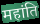
महांति